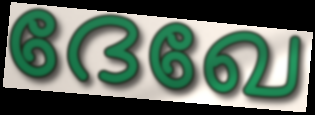
ദേഖേ